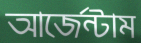
আর্জেন্টাম